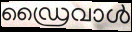
ഡ്രൈവാൾ